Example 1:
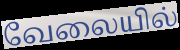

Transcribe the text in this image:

வேலையில்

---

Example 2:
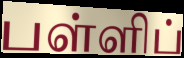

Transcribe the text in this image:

பள்ளிப்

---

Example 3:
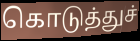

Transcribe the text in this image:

கொடுத்துச்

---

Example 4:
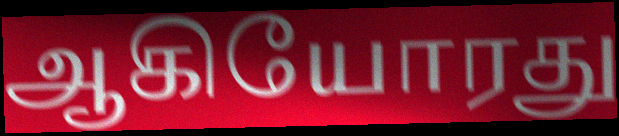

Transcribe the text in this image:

ஆகியோரது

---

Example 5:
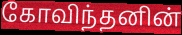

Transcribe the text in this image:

கோவிந்தனின்